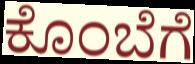
ಕೊಂಬೆಗೆ